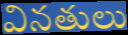
వినతులు